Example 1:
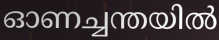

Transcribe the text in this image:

ഓണച്ചന്തയിൽ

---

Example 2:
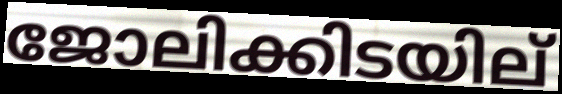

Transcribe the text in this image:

ജോലിക്കിടയില്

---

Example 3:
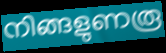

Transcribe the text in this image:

നിങ്ങളുണരൂ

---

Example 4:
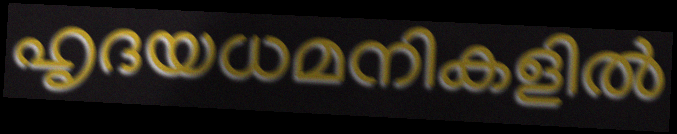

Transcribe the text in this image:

ഹൃദയധമനികളിൽ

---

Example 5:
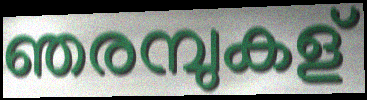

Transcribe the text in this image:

ഞരമ്പുകള്